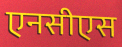
एनसीएस